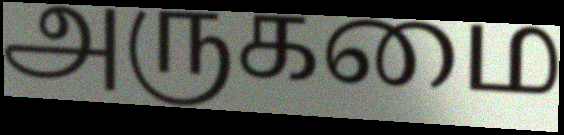
அருகமை